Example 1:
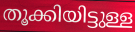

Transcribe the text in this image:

തൂക്കിയിട്ടുള്ള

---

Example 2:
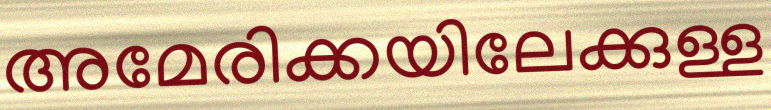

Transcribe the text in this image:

അമേരിക്കയിലേക്കുള്ള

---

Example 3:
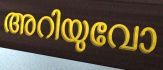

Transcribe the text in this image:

അറിയുവോ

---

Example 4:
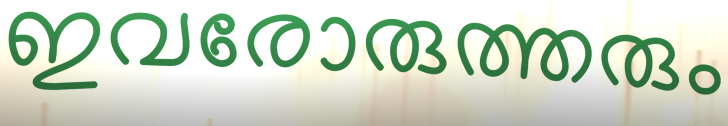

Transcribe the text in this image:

ഇവരോരുത്തരും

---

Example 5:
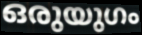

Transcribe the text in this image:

ഒരുയുഗം